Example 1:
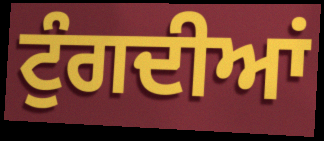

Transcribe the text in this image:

ਟੁੰਗਦੀਆਂ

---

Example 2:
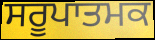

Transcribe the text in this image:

ਸਰੂਪਾਤਮਕ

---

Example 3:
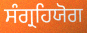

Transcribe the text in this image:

ਸੰਗ੍ਰਹਿਯੋਗ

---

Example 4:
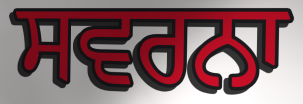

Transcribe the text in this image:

ਸਵਰਨਾ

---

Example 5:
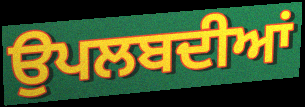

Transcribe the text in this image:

ਉਪਲਬਦੀਆਂ